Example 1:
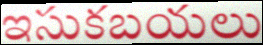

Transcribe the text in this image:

ఇసుకబయలు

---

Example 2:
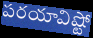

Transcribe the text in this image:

పరయావిష్టో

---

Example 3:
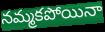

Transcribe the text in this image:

నమ్మకపోయినా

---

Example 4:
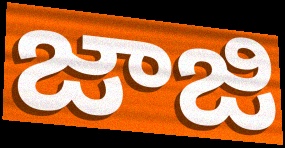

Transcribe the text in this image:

జాజి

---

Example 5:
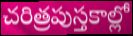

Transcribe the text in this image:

చరిత్రపుస్తకాల్లో